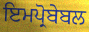
ਇਮਪ੍ਰੋਬੇਬਲ